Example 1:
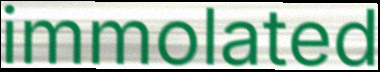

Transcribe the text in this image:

immolated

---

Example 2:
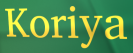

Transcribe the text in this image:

Koriya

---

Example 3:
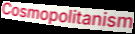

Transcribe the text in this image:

Cosmopolitanism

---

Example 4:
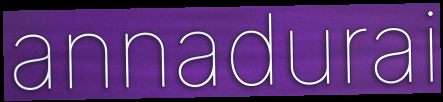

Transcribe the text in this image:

annadurai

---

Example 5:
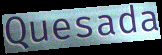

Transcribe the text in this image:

Quesada